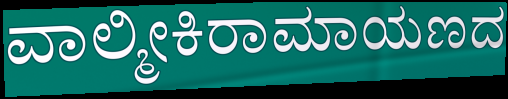
ವಾಲ್ಮೀಕಿರಾಮಾಯಣದ